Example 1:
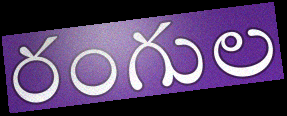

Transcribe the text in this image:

రంగుల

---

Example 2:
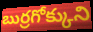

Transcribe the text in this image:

బుర్రగోక్కుని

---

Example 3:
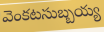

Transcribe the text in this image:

వెంకటసుబ్బయ్య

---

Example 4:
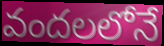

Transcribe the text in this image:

వందలలోనే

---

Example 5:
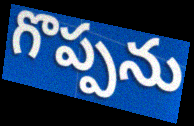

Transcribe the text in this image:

గొప్పను